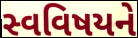
સ્વવિષયને